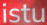
istu